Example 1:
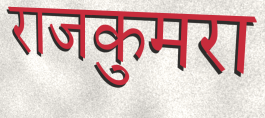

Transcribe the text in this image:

राजकुमरा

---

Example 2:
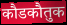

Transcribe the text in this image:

कौडकौतुक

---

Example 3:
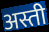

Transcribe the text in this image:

अस्ती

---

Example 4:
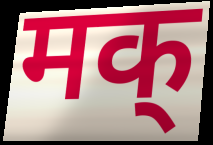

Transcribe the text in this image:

मक्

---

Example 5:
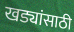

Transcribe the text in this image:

खड्यांसाठी